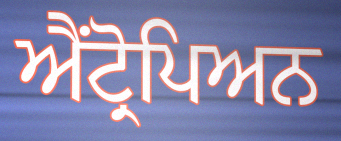
ਐਂਟ੍ਰੋਪਿਅਨ